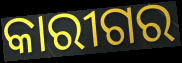
କାରୀଗର